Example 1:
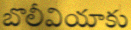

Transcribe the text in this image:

బొలీవియాకు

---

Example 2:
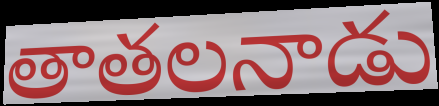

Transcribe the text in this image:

తాతలనాడు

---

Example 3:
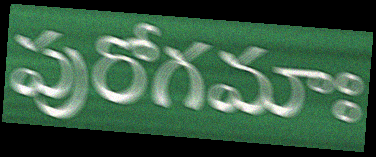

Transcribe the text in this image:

పురోగమాః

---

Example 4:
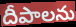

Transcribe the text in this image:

దీపాలను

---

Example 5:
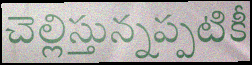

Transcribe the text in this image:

చెల్లిస్తున్నప్పటికీ